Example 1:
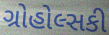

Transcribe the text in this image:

ગ્રોહોલ્સકી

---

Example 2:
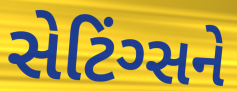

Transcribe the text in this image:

સેટિંગ્સને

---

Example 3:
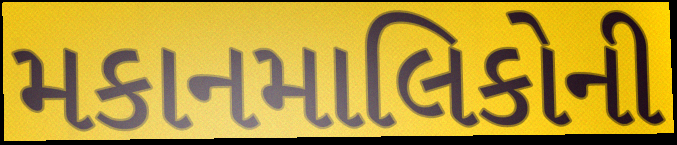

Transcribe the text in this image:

મકાનમાલિકોની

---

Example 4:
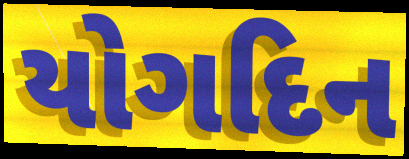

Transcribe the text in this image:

યોગદિન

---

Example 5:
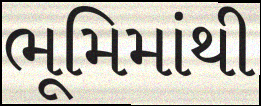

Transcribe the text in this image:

ભૂમિમાંથી